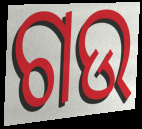
ଗଉ